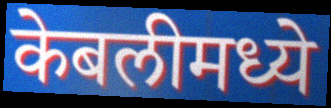
केबलीमध्ये